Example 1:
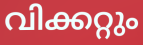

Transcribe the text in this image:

വിക്കറ്റും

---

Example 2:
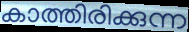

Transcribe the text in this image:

കാത്തിരിക്കുന്ന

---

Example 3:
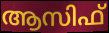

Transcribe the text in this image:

ആസിഫ്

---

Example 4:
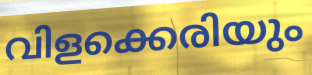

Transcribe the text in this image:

വിളക്കെരിയും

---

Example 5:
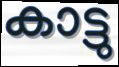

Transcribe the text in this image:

കാട്ടു